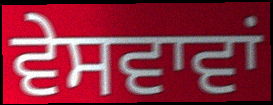
ਵੇਸਵਾਵਾਂ